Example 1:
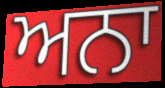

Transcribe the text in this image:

ਅਨਾ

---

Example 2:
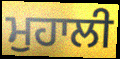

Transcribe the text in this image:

ਮੁਹਾਲੀ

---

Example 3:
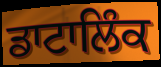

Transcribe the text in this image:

ਡਾਟਾਲਿੰਕ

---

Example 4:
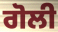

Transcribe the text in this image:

ਗੋਲੀ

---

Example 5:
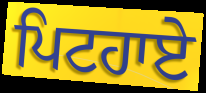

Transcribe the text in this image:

ਪਿਟਹਾਏ